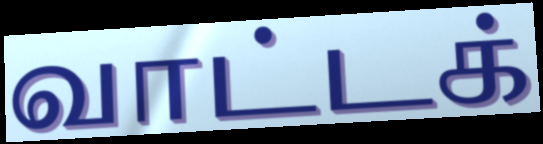
வாட்டக்